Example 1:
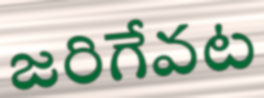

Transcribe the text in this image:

జరిగేవట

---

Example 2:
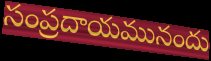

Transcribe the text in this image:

సంప్రదాయమునందు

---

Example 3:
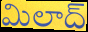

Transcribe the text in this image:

మిలాద్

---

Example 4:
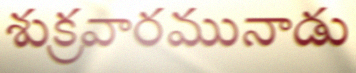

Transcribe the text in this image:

శుక్రవారమునాడు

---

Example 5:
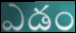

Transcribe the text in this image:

ఎడం